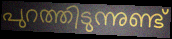
പുറത്തിടുന്നുണ്ട്